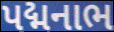
પદ્મનાભ